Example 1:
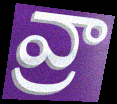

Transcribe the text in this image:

వ్రా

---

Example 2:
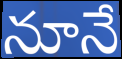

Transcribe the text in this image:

నూనే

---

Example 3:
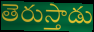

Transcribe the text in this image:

తెరుస్తాడు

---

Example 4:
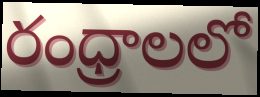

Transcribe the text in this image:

రంధ్రాలలో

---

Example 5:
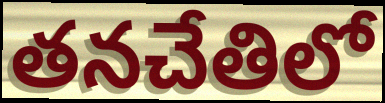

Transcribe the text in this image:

తనచేతిలో